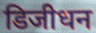
डिजीधन